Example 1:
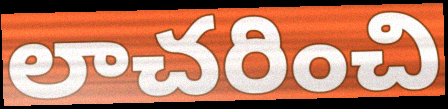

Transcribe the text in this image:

లాచరించి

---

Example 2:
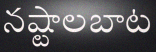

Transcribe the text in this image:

నష్టాలబాట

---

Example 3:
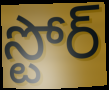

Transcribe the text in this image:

స్టోర్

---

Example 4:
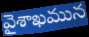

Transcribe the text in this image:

వైశాఖమున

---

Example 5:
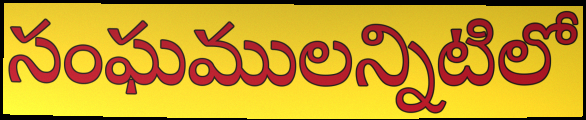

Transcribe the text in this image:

సంఘములన్నిటిలో